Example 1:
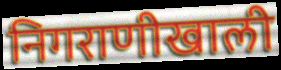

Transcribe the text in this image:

निगराणीखाली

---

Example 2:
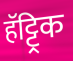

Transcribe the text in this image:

हॅट्ट्रिक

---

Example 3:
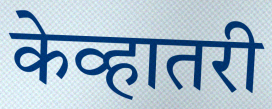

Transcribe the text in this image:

केव्हातरी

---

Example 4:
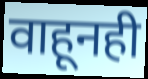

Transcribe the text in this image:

वाहूनही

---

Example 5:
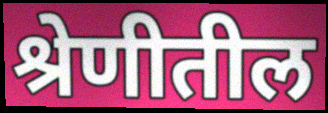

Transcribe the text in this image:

श्रेणीतील